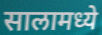
सालामध्ये